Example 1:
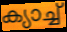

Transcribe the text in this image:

ക്യാച്ച്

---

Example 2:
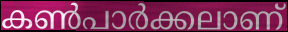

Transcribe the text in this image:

കൺപാർക്കലാണ്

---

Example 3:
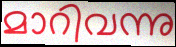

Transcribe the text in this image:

മാറിവന്നു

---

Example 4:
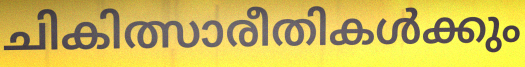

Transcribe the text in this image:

ചികിത്സാരീതികൾക്കും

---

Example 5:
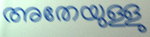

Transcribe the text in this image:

അതേയുള്ളു